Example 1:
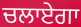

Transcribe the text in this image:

ਚਲਾਏਗਾ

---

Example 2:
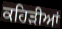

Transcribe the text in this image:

ਕਹਿੜੀਆਂ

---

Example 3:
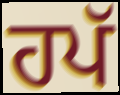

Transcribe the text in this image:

ਹਪੱ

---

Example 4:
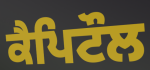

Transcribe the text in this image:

ਕੈਪਿਟੌਲ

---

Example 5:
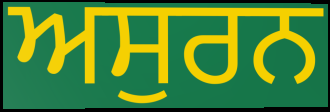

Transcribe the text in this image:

ਅਸੁਰਨ